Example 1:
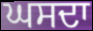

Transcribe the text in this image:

ਘਸਦਾ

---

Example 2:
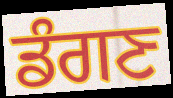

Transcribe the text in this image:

ਡੰਗਣ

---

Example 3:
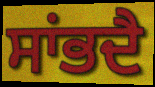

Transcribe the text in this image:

ਸਾਂਭਦੈ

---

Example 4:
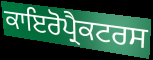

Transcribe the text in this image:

ਕਾਇਰੋਪ੍ਰੈਕਟਰਸ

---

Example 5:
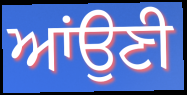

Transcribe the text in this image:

ਆਂਉਣੀ